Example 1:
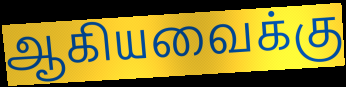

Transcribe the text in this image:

ஆகியவைக்கு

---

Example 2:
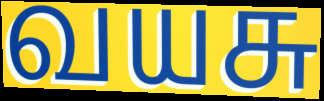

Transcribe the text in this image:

வயசு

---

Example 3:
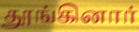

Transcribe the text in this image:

தூங்கினார்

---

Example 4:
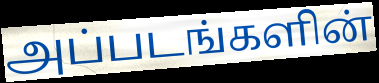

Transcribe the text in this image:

அப்படங்களின்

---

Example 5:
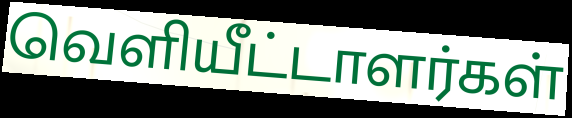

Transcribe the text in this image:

வெளியீட்டாளர்கள்